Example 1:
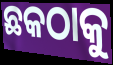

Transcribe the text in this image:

ଛକଠାକୁ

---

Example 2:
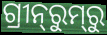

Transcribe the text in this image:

ଗ୍ରୀନ୍‌ରୁମ୍‌ରୁ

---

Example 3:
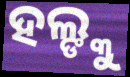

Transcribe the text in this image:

ହଲ୍ଙ୍କୁ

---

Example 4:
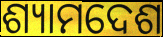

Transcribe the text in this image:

ଶ୍ୟାମଦେଶ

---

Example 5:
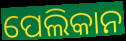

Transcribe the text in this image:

ପେଲିକାନ